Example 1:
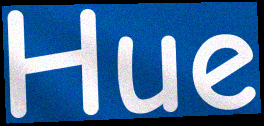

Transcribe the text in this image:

Hue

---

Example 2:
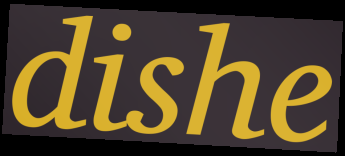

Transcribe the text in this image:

dishe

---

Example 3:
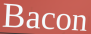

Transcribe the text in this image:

Bacon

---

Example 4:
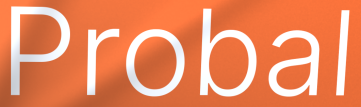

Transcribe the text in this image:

Probal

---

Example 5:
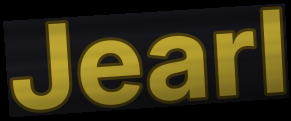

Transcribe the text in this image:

Jearl